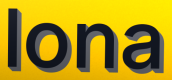
lona